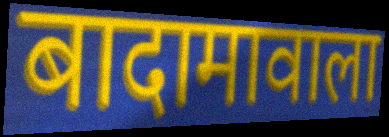
बादामावाला